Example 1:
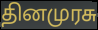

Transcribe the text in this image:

தினமுரசு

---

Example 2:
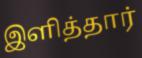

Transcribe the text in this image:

இளித்தார்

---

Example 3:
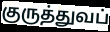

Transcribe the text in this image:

குருத்துவப்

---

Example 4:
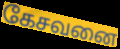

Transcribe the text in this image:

கேசவனை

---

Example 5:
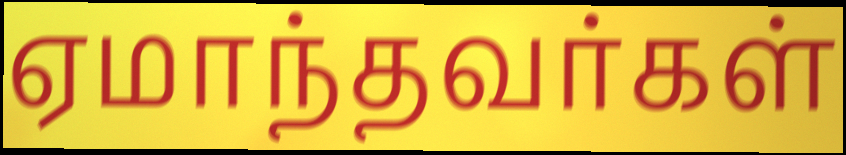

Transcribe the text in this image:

ஏமாந்தவர்கள்